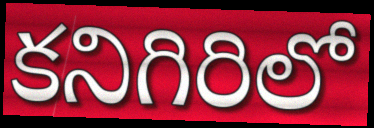
కనిగిరిలో